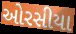
ઓરસીયા